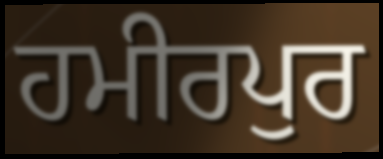
ਹਮੀਰਪੁਰ